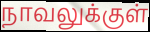
நாவலுக்குள்